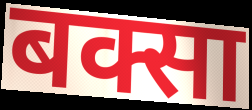
बक्सा